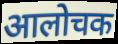
आलोचक